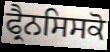
ਫ੍ਰੈਨਸਿਸਕੋ